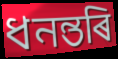
ধনন্তৰি